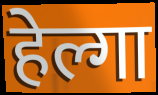
हेल्गा